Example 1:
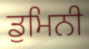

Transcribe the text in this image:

ਡੁਮਿਨੀ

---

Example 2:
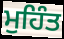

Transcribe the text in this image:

ਮੁਹਿੰਤ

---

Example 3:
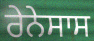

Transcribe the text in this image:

ਰੇਨੇਸਾਸ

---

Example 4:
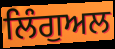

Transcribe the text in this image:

ਲਿੰਗੁਅਲ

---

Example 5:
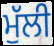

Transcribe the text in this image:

ਮੁੱਲੀ